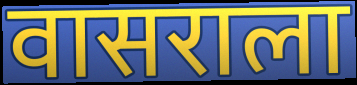
वासराला